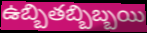
ఉబ్బితబ్బిబ్బయి